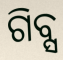
ଗିବ୍ସ